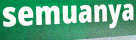
semuanya